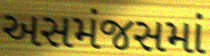
અસમંજસમાં